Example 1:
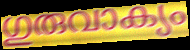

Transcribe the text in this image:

ഗുരുവാക്യം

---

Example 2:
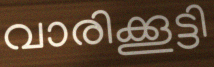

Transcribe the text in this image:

വാരിക്കൂട്ടി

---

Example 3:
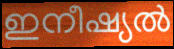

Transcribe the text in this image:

ഇനീഷ്യൽ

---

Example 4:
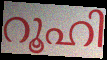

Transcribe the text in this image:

റൂഹി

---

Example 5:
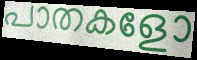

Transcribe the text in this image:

പാതകളോ